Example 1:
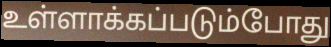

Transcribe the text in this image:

உள்ளாக்கப்படும்போது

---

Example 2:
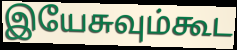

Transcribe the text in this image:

இயேசுவும்கூட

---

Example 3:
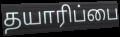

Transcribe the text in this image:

தயாரிப்பை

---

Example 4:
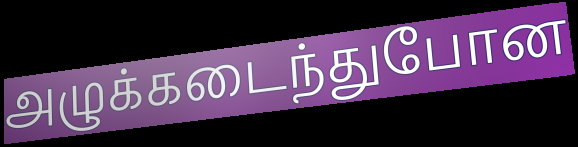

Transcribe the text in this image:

அழுக்கடைந்துபோன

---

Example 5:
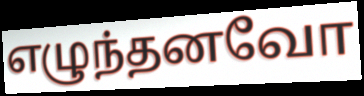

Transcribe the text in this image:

எழுந்தனவோ